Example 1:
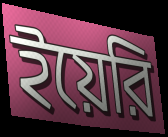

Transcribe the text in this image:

ইয়েরি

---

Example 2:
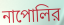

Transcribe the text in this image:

নাপোলির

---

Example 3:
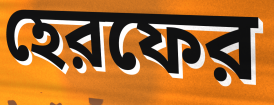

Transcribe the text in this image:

হেরফের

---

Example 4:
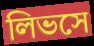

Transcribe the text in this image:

লিভসে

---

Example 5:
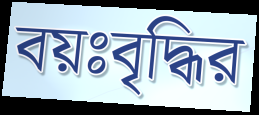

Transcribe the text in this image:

বয়ঃবৃদ্ধির